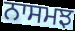
ਨਾਸਮਝ